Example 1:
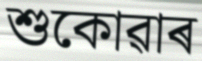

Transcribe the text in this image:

শুকোৱাৰ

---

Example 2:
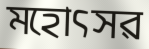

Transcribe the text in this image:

মহোৎসৱ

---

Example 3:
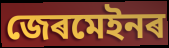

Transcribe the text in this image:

জেৰমেইনৰ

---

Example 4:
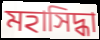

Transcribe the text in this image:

মহাসিদ্ধা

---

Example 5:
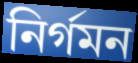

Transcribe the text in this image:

নিৰ্গমন